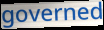
governed